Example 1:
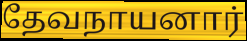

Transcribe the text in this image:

தேவநாயனார்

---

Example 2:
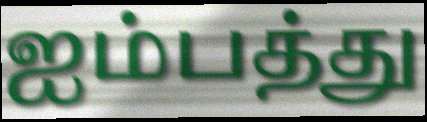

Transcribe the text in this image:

ஐம்பத்து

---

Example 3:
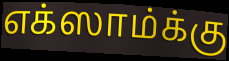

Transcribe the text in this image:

எக்ஸாம்க்கு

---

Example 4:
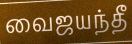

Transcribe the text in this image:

வைஜயந்தீ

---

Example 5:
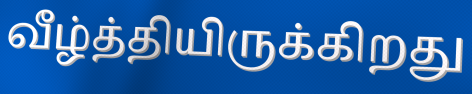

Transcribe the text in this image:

வீழ்த்தியிருக்கிறது